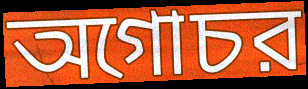
অগোচর